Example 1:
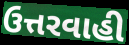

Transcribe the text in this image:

ઉત્તરવાહી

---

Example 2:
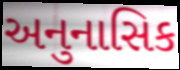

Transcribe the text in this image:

અનુનાસિક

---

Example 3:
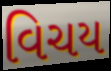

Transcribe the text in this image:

વિચય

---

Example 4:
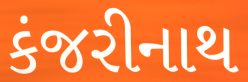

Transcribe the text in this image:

કંજરીનાથ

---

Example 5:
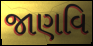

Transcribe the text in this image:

જાણવિ